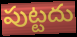
పుట్టదు